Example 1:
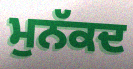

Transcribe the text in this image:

ਮੁਨੱਕਦ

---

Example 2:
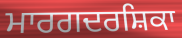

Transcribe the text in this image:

ਮਾਰਗਦਰਸ਼ਿਕਾ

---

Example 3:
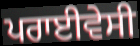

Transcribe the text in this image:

ਪਰਾਈਵੇਸੀ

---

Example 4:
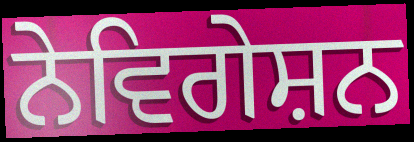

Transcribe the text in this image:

ਨੇਵਿਗੇਸ਼ਨ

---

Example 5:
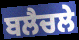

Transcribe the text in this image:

ਬਲੈਚਲੇ